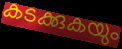
കടക്കുകയും